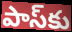
పాస్‌కు